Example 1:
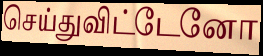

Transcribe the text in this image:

செய்துவிட்டேனோ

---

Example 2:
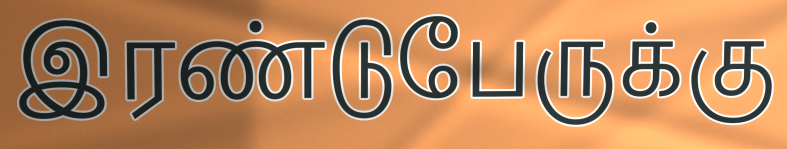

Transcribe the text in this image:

இரண்டுபேருக்கு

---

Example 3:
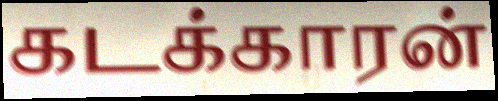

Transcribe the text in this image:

கடக்காரன்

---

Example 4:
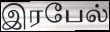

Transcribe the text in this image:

இரபேல்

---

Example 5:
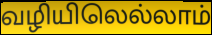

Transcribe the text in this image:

வழியிலெல்லாம்